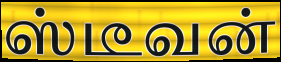
ஸ்டீவன்